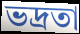
ভদ্ৰতা